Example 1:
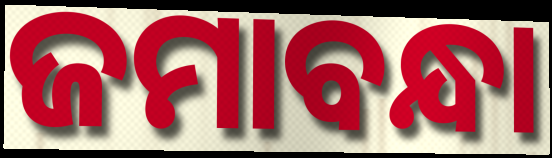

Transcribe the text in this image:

ଜମାବନ୍ଧା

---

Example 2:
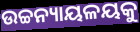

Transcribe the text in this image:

ଉଚ୍ଚନ୍ୟାୟଳୟକୁ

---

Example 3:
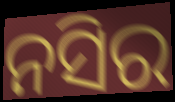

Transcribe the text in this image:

ନସିର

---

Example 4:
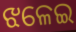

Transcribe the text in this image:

ଝଳେଇ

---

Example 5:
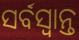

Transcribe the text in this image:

ସର୍ବସ୍ୱାନ୍ତ